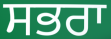
ਸਭਰਾ